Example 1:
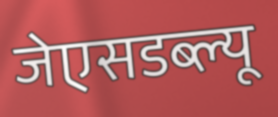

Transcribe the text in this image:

जेएसडब्ल्यू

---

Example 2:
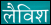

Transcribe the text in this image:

लैविश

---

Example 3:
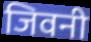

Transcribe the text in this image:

जिवनी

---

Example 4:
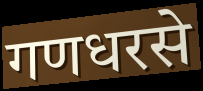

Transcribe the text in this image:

गणधरसे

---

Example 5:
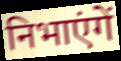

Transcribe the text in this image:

निभाएंगें